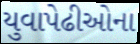
યુવાપેઢીઓના